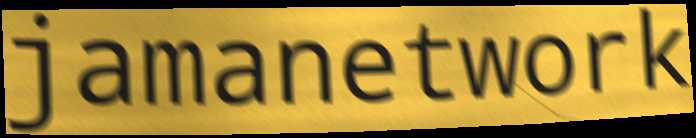
jamanetwork